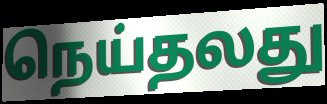
நெய்தலது